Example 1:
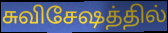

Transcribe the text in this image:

சுவிசேஷத்தில்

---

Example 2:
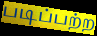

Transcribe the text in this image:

படிப்பற்ற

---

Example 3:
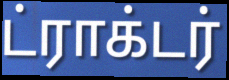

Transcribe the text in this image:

ட்ராக்டர்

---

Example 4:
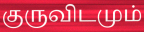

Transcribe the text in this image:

குருவிடமும்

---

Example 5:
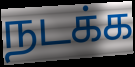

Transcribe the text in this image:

நடக்க